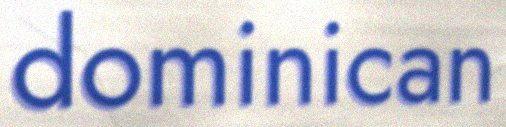
dominican